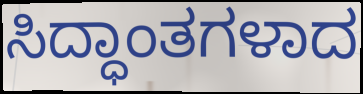
ಸಿದ್ಧಾಂತಗಳಾದ